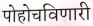
पोहोचविणारी